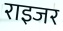
राइजर